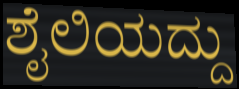
ಶೈಲಿಯದ್ದು